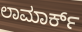
ಲಾಮಾರ್ಕ್